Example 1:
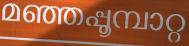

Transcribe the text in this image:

മഞ്ഞപ്പൂമ്പാറ്റ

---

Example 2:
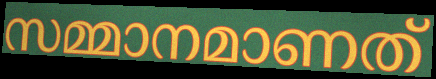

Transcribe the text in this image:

സമ്മാനമാണത്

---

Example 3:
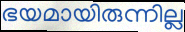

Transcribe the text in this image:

ഭയമായിരുന്നില്ല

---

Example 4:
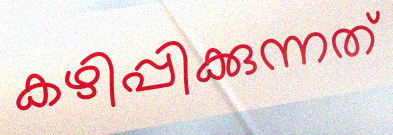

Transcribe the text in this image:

കഴിപ്പിക്കുന്നത്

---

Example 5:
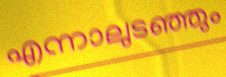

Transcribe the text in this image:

എന്നാലുടഞ്ഞും